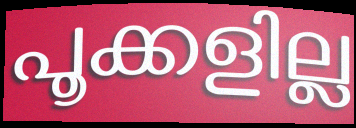
പൂക്കളില്ല